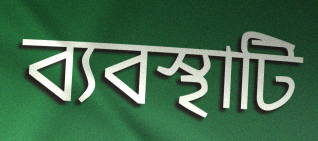
ব্যবস্থাটি